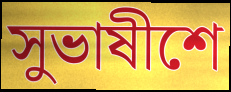
সুভাষীশে